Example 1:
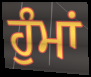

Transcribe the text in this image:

ਹੁੰਮਾਂ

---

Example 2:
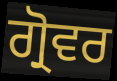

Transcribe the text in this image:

ਗ੍ਰੋਵਰ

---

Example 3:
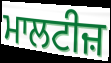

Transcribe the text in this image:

ਮਾਲਟੀਜ਼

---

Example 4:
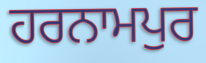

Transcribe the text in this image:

ਹਰਨਾਮਪੁਰ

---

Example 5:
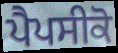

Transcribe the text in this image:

ਪੈਪਸੀਕੋ